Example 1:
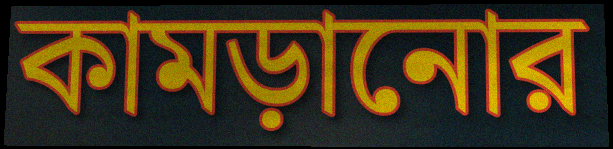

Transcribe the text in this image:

কামড়ানোর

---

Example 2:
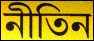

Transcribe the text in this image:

নীতিন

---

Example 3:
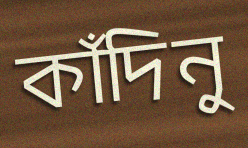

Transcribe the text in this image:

কাঁদিনু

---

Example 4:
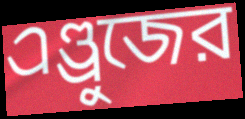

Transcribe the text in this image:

এণ্ড্রুজের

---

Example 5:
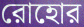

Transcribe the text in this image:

রোহোর